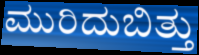
ಮುರಿದುಬಿತ್ತು